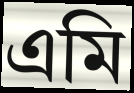
এমি